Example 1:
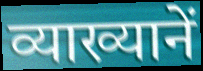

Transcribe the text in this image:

व्याख्यानें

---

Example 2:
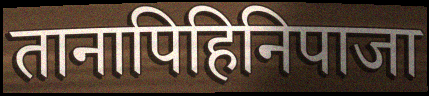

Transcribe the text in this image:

तानापिहिनिपाजा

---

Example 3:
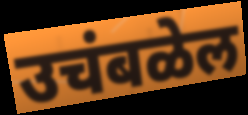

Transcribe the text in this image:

उचंबळेल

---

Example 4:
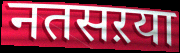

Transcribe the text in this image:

नतसऱया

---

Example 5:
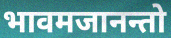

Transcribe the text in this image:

भावमजानन्तो